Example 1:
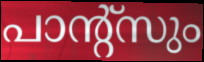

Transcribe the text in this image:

പാന്റ്സും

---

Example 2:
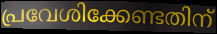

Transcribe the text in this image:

പ്രവേശിക്കേണ്ടതിന്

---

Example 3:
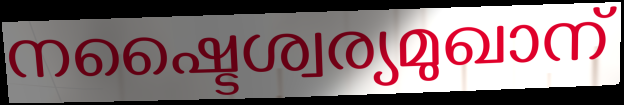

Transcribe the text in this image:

നഷ്ടൈശ്വര്യമുഖാന്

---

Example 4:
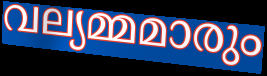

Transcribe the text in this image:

വല്യമ്മമാരും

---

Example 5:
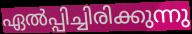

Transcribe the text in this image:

ഏൽപ്പിച്ചിരിക്കുന്നു